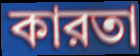
কারতা